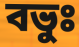
বভুঃ